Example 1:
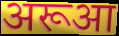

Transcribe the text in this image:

अरूआ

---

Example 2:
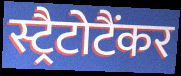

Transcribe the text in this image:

स्ट्रैटोटैंकर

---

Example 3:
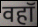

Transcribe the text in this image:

वहॉ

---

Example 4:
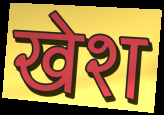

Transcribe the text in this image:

खेश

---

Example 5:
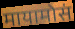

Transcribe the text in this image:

मायामोसं